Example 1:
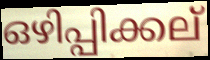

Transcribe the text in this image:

ഒഴിപ്പിക്കല്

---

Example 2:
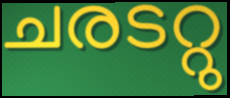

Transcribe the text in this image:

ചരടറ്റു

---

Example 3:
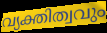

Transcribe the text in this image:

വ്യക്തിത്വവും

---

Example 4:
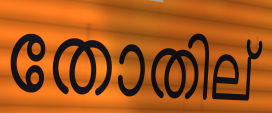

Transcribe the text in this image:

തോതില്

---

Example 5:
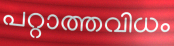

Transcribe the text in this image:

പറ്റാത്തവിധം